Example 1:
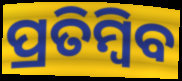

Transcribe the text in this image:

ପ୍ରତିମ୍ବିବ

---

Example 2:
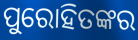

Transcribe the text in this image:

ପୁରୋହିତଙ୍କର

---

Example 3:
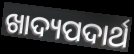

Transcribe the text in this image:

ଖାଦ୍ୟପଦାର୍ଥ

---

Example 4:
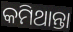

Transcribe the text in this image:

କମିଥାନ୍ତା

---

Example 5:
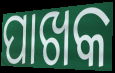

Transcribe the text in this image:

ପାଖକ